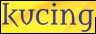
kucing